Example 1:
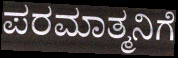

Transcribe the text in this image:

ಪರಮಾತ್ಮನಿಗೆ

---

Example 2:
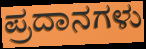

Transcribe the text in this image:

ಪ್ರದಾನಗಳು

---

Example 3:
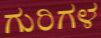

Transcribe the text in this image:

ಗುರಿಗಳ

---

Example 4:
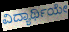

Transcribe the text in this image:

ವಿದ್ಯಾರ್ಥಿಯೇ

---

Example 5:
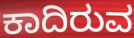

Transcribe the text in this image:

ಕಾದಿರುವ